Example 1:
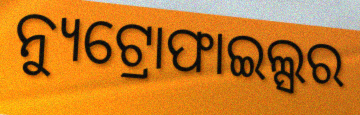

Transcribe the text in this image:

ନ୍ୟୁଟ୍ରୋଫାଇଲ୍ସର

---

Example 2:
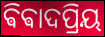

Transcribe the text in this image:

ଵିଵାଦପ୍ରିୟ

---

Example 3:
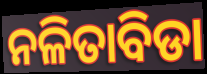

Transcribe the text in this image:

ନଳିତାବିଡା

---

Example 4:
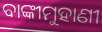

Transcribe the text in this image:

ବାଙ୍କୀମୁହାଣୀ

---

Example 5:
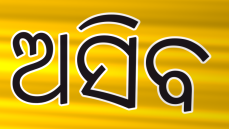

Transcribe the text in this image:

ଅସିବ